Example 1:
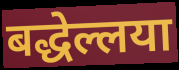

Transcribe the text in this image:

बद्धेल्लया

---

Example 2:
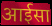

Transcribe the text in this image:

आईसा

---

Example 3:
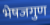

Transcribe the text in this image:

भेषजगुण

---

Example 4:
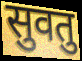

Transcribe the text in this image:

सुवतु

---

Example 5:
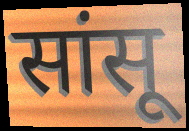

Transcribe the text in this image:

सांसू